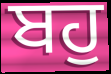
ਬਹੁ